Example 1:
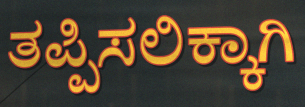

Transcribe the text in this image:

ತಪ್ಪಿಸಲಿಕ್ಕಾಗಿ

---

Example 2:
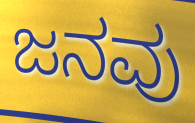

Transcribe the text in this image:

ಜನವು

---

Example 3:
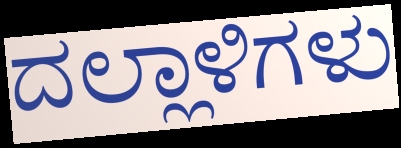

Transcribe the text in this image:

ದಲ್ಲಾಳಿಗಳು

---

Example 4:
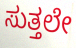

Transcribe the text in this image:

ಸುತ್ತಲೇ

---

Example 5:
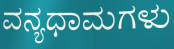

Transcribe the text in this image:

ವನ್ಯಧಾಮಗಳು